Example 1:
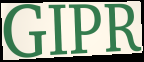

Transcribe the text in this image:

GIPR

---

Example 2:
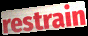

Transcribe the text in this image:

restrain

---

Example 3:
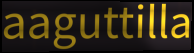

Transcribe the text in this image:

aaguttilla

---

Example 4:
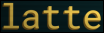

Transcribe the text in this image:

latte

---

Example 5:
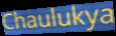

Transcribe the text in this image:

Chaulukya